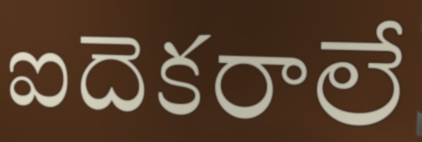
ఐదెకరాలే